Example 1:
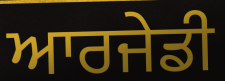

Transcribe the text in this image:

ਆਰਜੇਡੀ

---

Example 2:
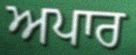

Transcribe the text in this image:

ਅਪਾਰ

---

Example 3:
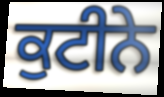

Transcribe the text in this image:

ਕੁਟੀਨੇ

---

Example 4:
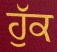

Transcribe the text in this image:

ਹੁੱਕ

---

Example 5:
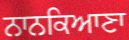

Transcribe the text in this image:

ਨਾਨਕਿਆਣਾ